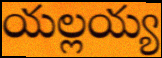
యల్లయ్య